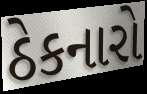
ઠેકનારો